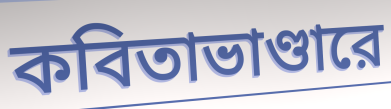
কবিতাভাণ্ডারে